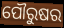
ପୌରୁଷର